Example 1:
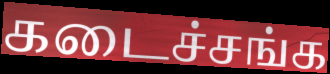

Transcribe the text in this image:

கடைச்சங்க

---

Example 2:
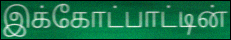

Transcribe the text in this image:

இக்கோட்பாட்டின்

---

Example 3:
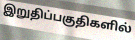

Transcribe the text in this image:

இறுதிப்பகுதிகளில்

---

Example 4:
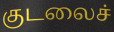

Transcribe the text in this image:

குடலைச்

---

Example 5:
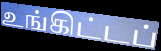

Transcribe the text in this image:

உங்கிட்டப்